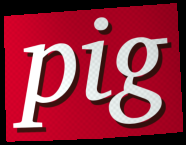
pig